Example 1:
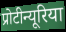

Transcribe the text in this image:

प्रोटीन्यूरिया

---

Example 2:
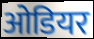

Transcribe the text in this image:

ओडियर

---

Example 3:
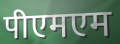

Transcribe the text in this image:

पीएमएम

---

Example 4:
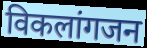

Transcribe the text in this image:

विकलांगजन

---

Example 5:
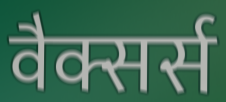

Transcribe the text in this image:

वैक्सर्स